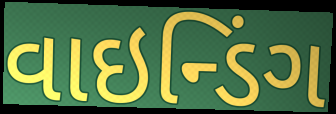
વાઇન્ડિંગ